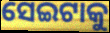
ସେଇଟାକୁ